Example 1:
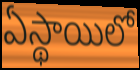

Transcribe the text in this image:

ఏస్థాయిలో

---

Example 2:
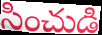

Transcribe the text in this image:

సించుడి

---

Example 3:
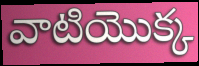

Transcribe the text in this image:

వాటియొక్క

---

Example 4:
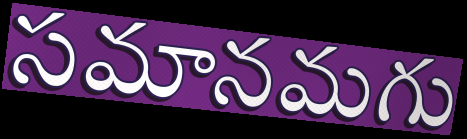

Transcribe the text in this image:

సమానమగు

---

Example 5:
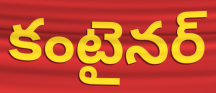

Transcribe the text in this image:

కంటైనర్